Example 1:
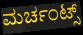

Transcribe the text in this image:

ಮರ್ಚಂಟ್ಸ್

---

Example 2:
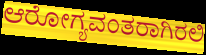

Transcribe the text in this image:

ಆರೋಗ್ಯವಂತರಾಗಿರಲಿ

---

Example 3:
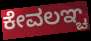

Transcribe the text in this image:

ಕೇವಲಞ್ಚ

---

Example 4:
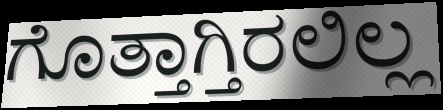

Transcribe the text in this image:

ಗೊತ್ತಾಗ್ತಿರಲಿಲ್ಲ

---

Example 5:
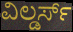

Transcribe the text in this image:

ವಿಲ್ಡರ್ಸ್